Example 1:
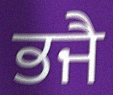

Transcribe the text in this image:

ਭਜੈ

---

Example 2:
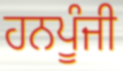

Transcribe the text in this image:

ਹਨਪੂੰਜੀ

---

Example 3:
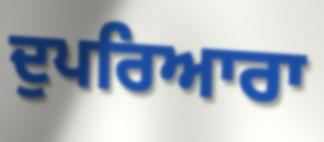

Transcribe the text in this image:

ਦੁਪਰਿਆਰਾ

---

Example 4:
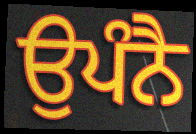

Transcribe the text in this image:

ਉਪੰਨੈ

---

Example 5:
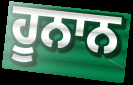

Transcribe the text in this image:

ਹੂਨਾਨ